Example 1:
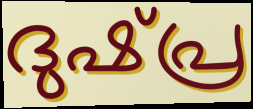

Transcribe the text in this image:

ദുഷ്‌പ്ര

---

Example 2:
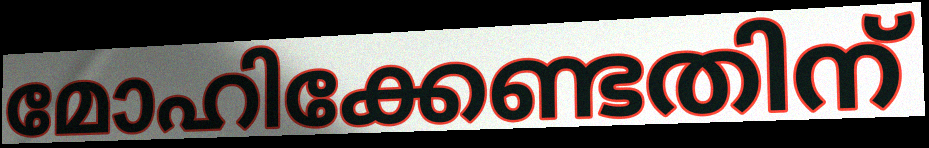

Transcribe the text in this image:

മോഹിക്കേണ്ടതിന്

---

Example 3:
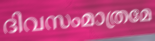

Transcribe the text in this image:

ദിവസംമാത്രമേ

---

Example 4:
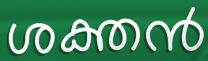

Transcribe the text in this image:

ശക്തൻ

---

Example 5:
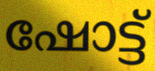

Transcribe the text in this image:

ഷോട്ട്